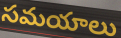
సమయాలు